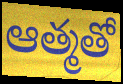
ఆత్మతో